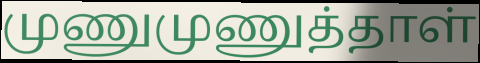
முணுமுணுத்தாள்